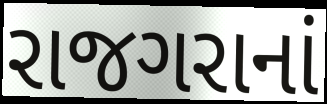
રાજગરાનાં